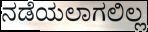
ನಡೆಯಲಾಗಲಿಲ್ಲ